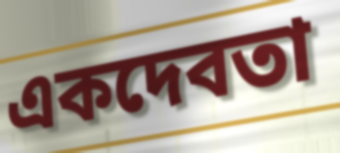
একদেবতা